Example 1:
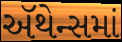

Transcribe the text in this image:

ઍથેન્સમાં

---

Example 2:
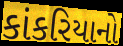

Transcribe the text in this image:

કાંકરિયાનો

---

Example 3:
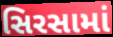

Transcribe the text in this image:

સિરસામાં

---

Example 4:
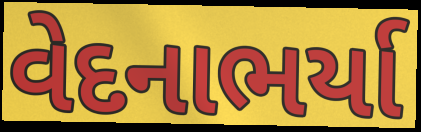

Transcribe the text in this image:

વેદનાભર્યા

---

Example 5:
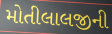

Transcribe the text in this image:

મોતીલાલજીની